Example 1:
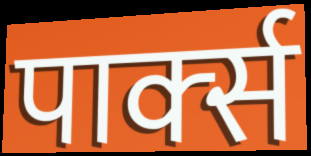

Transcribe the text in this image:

पार्क्‍स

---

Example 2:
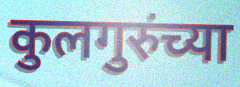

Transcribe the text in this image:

कुलगुरुंच्या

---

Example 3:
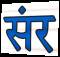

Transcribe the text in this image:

संर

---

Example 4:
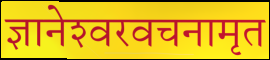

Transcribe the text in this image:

ज्ञानेश्वरवचनामृत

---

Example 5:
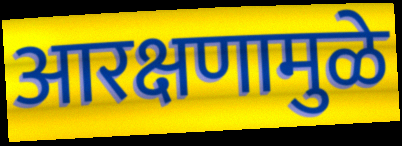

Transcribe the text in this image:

आरक्षणामुळे